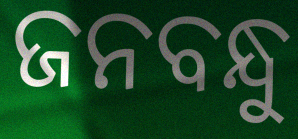
ଜନବନ୍ଧୁ